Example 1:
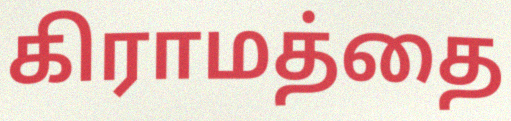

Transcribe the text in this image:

கிராமத்தை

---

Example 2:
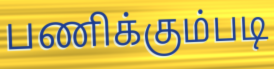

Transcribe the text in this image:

பணிக்கும்படி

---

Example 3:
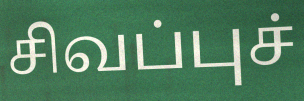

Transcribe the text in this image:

சிவப்புச்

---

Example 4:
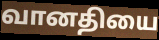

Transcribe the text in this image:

வானதியை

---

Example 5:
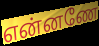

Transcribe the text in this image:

என்னணே